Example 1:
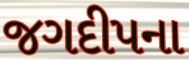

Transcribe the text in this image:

જગદીપના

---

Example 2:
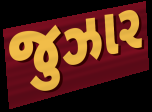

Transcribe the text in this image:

જુઝાર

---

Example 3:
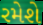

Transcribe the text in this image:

રમેશે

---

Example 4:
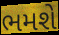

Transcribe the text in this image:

ભમશે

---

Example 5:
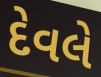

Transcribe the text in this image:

દેવલે